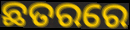
ଛତରରେ